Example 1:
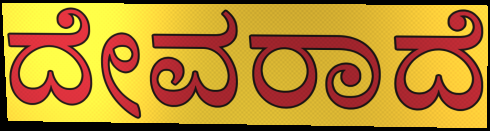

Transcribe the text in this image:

ದೇವರಾದೆ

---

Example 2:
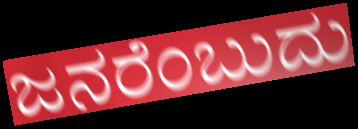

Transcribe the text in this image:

ಜನರೆಂಬುದು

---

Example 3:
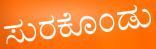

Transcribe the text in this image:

ಸುರಕೊಂಡು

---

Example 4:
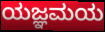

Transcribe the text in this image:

ಯಜ್ಞಮಯ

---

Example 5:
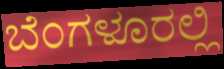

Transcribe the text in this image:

ಬೆಂಗಳೂರಲ್ಲಿ